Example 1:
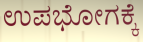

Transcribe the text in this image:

ಉಪಭೋಗಕ್ಕೆ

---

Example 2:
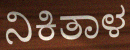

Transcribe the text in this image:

ನಿಕಿತಾಳ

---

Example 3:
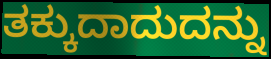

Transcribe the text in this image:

ತಕ್ಕುದಾದುದನ್ನು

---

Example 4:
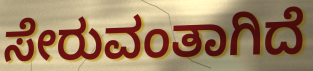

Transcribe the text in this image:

ಸೇರುವಂತಾಗಿದೆ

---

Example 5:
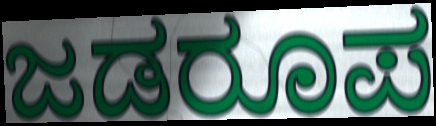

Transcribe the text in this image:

ಜಡರೂಪ